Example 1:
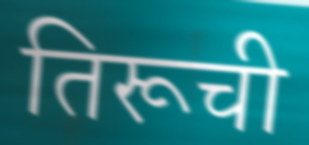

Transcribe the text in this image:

तिरूची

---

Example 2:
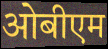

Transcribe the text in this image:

ओबीएम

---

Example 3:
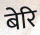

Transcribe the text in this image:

बेरि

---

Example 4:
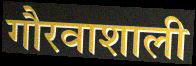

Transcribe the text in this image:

गौरवाशाली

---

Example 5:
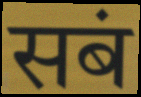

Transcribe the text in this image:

सबं